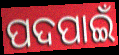
ପଦପାଇଁ